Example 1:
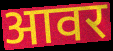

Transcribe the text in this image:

आवर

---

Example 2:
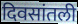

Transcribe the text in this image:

दिवसांतली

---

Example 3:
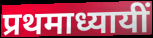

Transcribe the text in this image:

प्रथमाध्यायीं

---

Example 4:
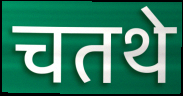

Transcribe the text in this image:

चतथे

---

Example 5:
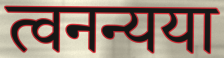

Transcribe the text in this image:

त्वनन्यया